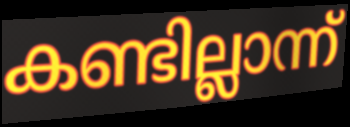
കണ്ടില്ലാന്ന്